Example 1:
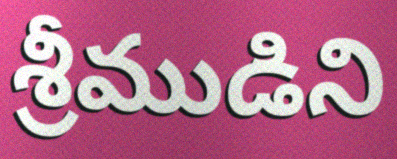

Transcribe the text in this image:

శ్రీముడిని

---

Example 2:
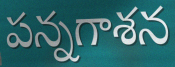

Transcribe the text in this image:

పన్నగాశన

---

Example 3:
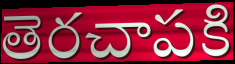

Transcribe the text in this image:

తెరచాపకి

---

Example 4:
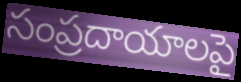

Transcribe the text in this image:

సంప్రదాయాలపై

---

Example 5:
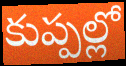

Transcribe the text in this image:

కుప్పల్లో